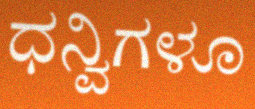
ಧನ್ವಿಗಳೂ